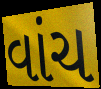
વાંચ